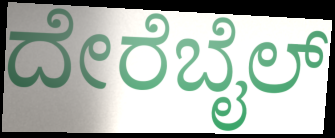
ದೇರೆಬೈಲ್